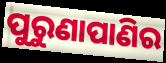
ପୁରୁଣାପାଣିର